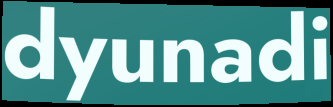
dyunadi